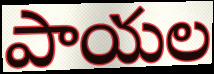
పాయల